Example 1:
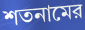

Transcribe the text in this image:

শতনামের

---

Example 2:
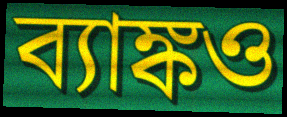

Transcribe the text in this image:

ব্যাঙ্কও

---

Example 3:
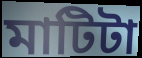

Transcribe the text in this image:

মাটিটা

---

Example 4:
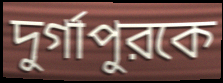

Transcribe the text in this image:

দুর্গাপুরকে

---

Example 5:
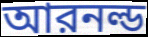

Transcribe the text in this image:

আরনল্ড